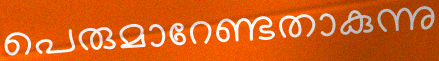
പെരുമാറേണ്ടതാകുന്നു